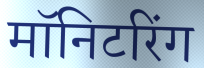
मॉनिटरिंग